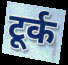
टूर्क